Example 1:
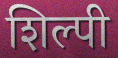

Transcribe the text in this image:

शिल्पी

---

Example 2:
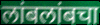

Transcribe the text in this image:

लांबलांबचा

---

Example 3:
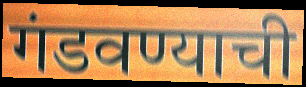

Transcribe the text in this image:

गंडवण्याची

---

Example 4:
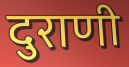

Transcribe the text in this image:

दुराणी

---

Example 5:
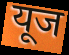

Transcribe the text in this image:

यूज